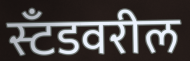
स्टँडवरील